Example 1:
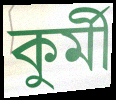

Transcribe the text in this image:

কুৰ্মী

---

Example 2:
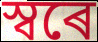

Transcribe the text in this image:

স্বৰে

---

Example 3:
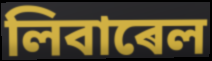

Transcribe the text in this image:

লিবাৰেল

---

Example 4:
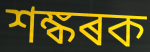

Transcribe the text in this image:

শঙ্কৰক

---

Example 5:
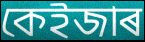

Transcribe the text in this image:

কেইজাৰ